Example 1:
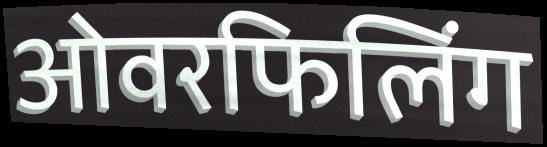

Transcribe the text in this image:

ओवरफिलिंग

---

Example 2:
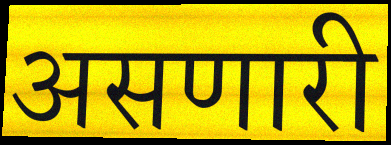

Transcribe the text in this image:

असणारी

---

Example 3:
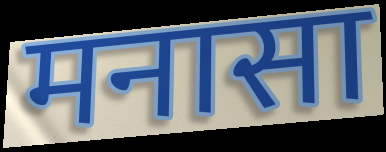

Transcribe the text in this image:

मनासा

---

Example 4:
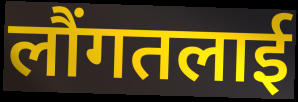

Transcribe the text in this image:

लौंगतलाई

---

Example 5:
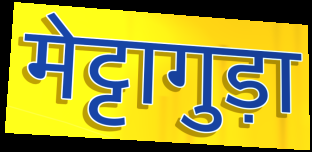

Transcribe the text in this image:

मेट्टागुड़ा